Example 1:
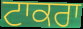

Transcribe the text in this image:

ਟਾਕਰਾ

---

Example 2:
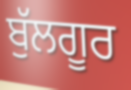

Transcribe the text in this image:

ਬੁੱਲਗੂਰ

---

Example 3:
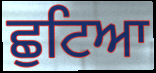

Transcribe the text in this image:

ਛੁਟਿਆ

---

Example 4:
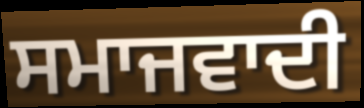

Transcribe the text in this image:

ਸਮਾਜਵਾਦੀ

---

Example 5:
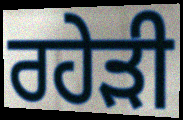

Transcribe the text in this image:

ਰਹੇੜੀ